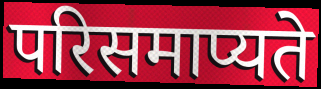
परिसमाप्यते